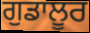
ਗੁਡਾਲੂਰ